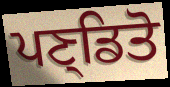
ਪਣ੍ਡਿਤੋ